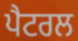
ਪੈਟਰਲ